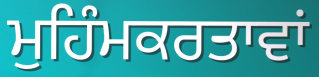
ਮੁਹਿੰਮਕਰਤਾਵਾਂ